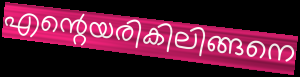
എന്റെയരികിലിങ്ങനെ